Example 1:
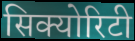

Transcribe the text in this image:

सिक्योरिटी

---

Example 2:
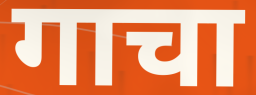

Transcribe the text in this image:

गाचा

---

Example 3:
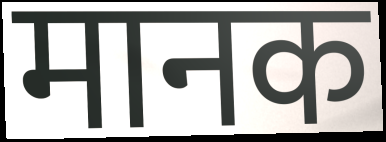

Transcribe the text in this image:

मानक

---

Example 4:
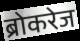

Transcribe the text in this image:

ब्रोकरेज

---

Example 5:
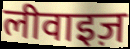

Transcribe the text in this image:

लीवाइज़